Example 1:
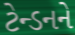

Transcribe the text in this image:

ટેન્ડનને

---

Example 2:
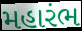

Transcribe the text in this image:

મહારંભ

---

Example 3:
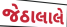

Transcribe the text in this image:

જેઠાલાલે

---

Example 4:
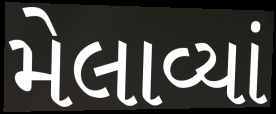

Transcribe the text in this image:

મેલાવ્યાં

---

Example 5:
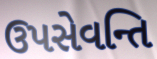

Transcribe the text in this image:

ઉપસેવન્તિ